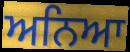
ਅਨਿਆ